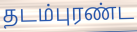
தடம்புரண்ட